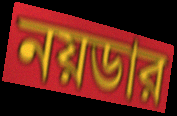
নয়ডার